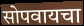
सोपवायचा